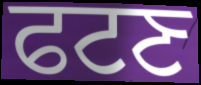
ਫਟਣ